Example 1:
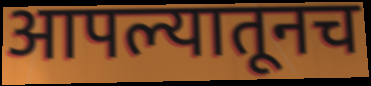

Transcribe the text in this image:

आपल्यातूनच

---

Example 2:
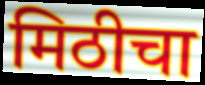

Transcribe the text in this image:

मिठीचा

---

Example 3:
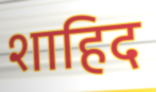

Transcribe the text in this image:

शाहिद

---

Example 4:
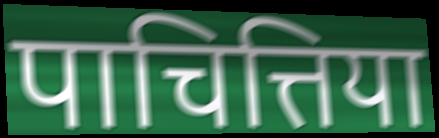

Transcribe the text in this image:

पाचित्तिया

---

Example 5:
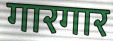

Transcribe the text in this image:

गारगार